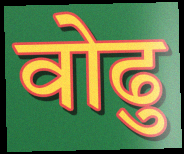
वोढु